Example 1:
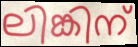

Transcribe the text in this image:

ലിങ്കിന്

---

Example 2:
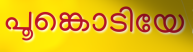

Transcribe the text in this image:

പൂങ്കൊടിയേ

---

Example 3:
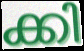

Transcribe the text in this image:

ക്കി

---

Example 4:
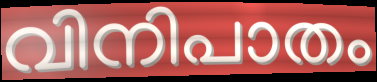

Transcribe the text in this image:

വിനിപാതം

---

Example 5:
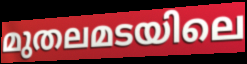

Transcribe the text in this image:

മുതലമടയിലെ